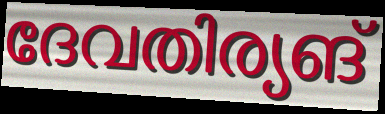
ദേവതിര്യങ്